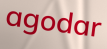
agodar